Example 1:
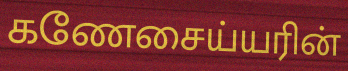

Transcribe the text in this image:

கணேசைய்யரின்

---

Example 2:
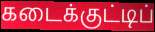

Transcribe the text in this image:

கடைக்குட்டிப்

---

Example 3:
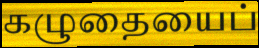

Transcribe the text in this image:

கழுதையைப்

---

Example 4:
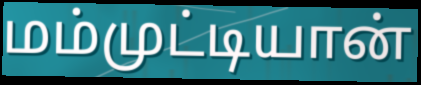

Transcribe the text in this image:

மம்முட்டியான்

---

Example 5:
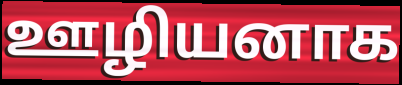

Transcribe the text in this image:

ஊழியனாக